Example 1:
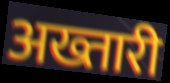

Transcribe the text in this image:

अख्तारी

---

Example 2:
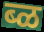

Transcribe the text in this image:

ब्ळ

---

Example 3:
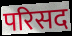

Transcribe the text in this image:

परिसद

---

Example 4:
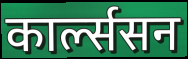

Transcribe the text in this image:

कार्ल्ससन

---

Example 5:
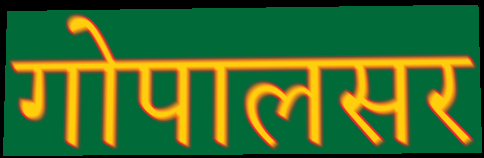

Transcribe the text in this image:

गोपालसर